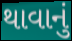
થાવાનું